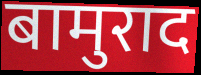
बामुराद